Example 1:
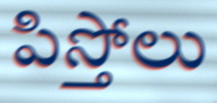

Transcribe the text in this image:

పిస్తోలు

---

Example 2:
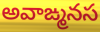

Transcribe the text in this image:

అవాఙ్మనస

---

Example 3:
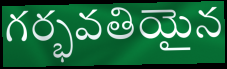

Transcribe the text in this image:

గర్భవతియైన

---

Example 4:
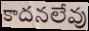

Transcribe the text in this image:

కాదనలేవు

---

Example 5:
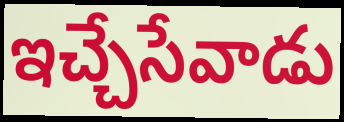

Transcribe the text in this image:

ఇచ్చేసేవాడు